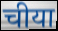
चीया